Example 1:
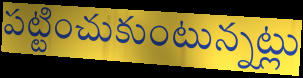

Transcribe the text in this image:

పట్టించుకుంటున్నట్లు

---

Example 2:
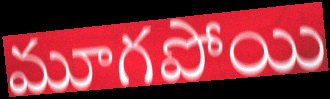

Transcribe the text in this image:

మూగపోయి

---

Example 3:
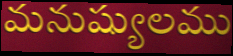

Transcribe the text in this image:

మనుష్యులము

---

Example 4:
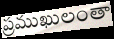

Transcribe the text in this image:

ప్రముఖులంతా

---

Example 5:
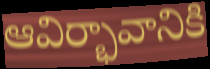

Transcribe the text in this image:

ఆవిర్భావానికి